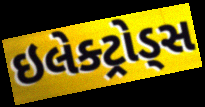
ઇલેક્ટ્રોડ્સ